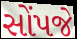
સોંપજે